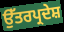
ਉੱਤਰਪ੍ਰਦੇਸ਼